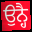
ਉਨ੍ਹੈ